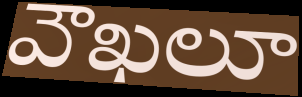
వౌఖలూ